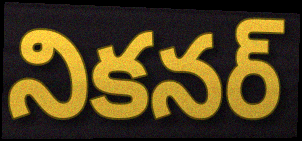
నికనర్